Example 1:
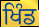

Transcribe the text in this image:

ਖਿੰਡ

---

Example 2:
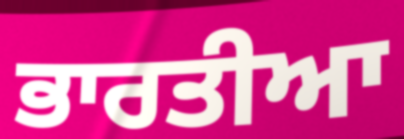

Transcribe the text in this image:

ਭਾਰਤੀਆ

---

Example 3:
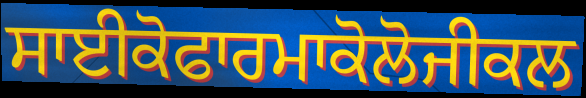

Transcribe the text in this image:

ਸਾਈਕੋਫਾਰਮਾਕੋਲੋਜੀਕਲ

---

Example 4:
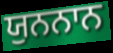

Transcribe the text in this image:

ਯੁਨਨਾਨ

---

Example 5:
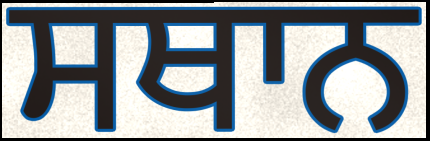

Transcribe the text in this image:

ਸਥਾਨ